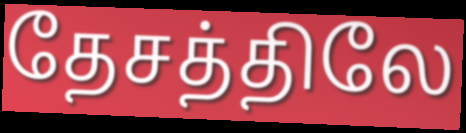
தேசத்திலே